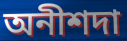
অনীশদা